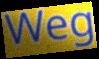
Weg